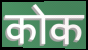
कोक